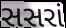
સસરાં